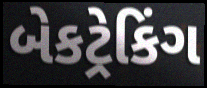
બેકટ્રેકિંગ